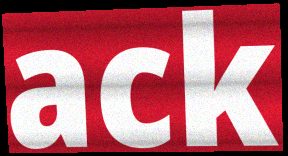
ack